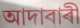
আদাবাৰী